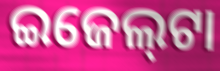
ଇଜେଲ୍‍ଟା